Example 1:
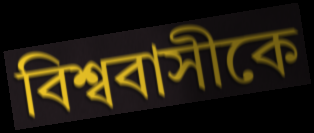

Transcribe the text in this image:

বিশ্ববাসীকে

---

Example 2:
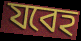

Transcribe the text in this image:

যবেহ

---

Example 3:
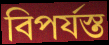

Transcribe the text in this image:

বিপর্যস্ত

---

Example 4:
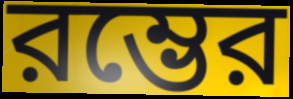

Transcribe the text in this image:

রম্ভের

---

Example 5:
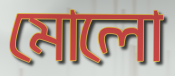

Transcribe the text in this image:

মোলো